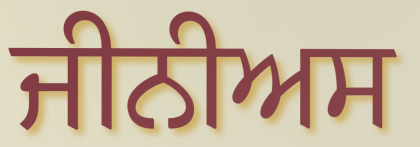
ਜੀਨੀਅਸ